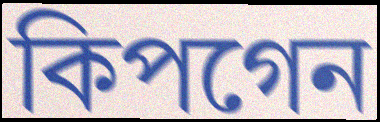
কিপগেন